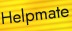
Helpmate